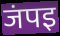
जंपइ